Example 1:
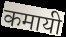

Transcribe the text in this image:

कमायी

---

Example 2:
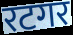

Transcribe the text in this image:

रटगर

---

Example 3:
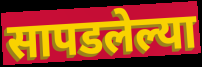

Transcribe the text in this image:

सापडलेल्या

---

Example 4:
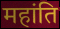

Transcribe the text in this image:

महांति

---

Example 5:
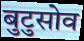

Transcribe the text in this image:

बुटुसोव